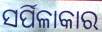
ସର୍ପିଳାକାର